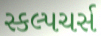
સ્કલ્પચર્સ